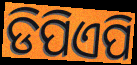
ଡିପିଏପି